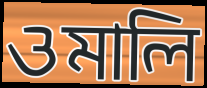
ওমালি